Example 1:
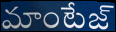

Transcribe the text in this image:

మాంటేజ్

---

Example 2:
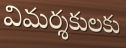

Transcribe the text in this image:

విమర్శకులకు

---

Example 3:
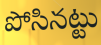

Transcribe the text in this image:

పోసినట్టు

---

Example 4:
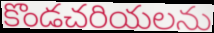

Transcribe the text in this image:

కొండచరియలను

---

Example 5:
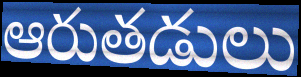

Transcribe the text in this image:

ఆరుతడులు